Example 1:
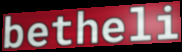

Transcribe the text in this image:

betheli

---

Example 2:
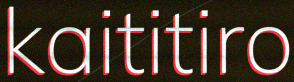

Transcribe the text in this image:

kaititiro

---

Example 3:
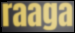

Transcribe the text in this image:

raaga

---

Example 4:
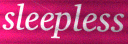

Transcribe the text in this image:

sleepless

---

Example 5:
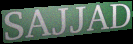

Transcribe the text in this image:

SAJJAD